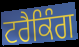
ਟਰੈਕਿੰਗ